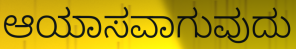
ಆಯಾಸವಾಗುವುದು